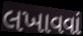
લખાવવાં